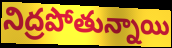
నిద్రపోతున్నాయి